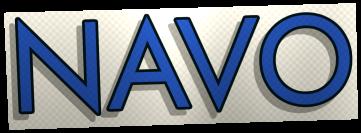
NAVO